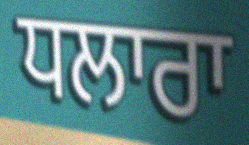
ਧਲਾਰਾ